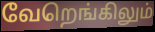
வேறெங்கிலும்